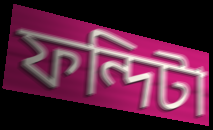
ফন্দিটা